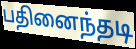
பதினைந்தடி